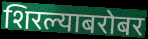
शिरल्याबरोबर